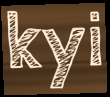
kyi